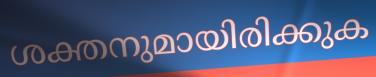
ശക്തനുമായിരിക്കുക